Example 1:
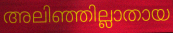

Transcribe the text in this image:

അലിഞ്ഞില്ലാതായ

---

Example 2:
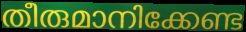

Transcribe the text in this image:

തീരുമാനിക്കേണ്ട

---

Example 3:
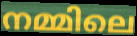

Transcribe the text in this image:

നമ്മിലെ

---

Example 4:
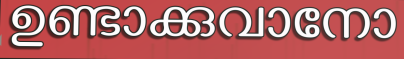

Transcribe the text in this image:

ഉണ്ടാക്കുവാനോ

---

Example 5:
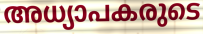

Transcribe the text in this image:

അധ്യാപകരുടെ